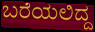
ಬರೆಯಲಿದ್ದ